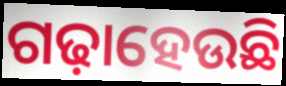
ଗଢ଼ାହେଉଛି